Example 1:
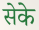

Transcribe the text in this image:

सेके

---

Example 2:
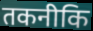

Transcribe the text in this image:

तकनीकि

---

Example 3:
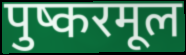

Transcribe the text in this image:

पुष्करमूल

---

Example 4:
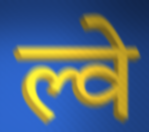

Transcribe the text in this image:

ल्वे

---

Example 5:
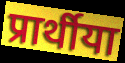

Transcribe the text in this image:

प्रार्थीया